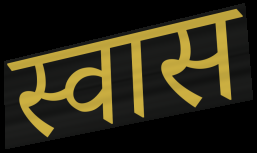
स्वास